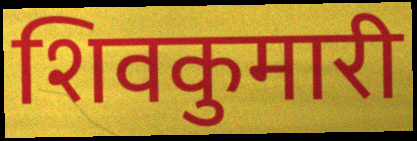
शिवकुमारी